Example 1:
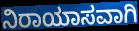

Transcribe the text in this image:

ನಿರಾಯಾಸವಾಗಿ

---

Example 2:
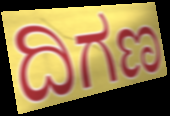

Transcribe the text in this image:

ದಿಗಣ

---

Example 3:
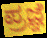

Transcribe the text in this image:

ಪ್ರಜ್ಞೆ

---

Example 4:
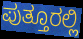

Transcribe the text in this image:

ಪುತ್ತೂರಲ್ಲಿ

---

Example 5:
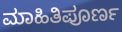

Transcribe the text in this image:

ಮಾಹಿತಿಪೂರ್ಣ